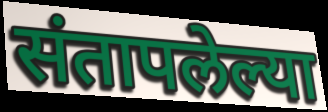
संतापलेल्या